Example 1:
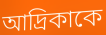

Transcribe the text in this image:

আদ্রিকাকে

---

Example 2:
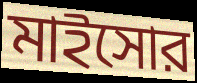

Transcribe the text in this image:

মাইসোর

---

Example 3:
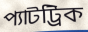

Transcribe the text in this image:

প্যাটট্রিক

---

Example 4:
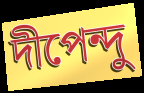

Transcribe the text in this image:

দীপেন্দু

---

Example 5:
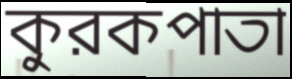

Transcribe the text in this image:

কুরকপাতা